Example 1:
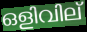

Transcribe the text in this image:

ഒളിവില്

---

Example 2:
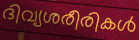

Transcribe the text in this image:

ദിവ്യശരീരികൾ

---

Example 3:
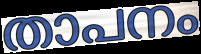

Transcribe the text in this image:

താപനം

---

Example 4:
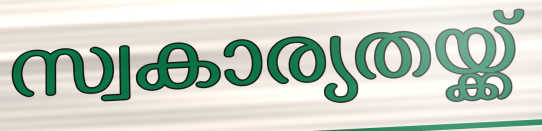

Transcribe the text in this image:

സ്വകാര്യതയ്ക്ക്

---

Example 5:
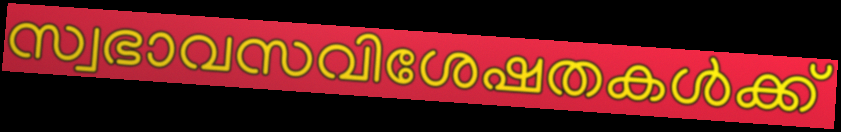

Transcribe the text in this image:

സ്വഭാവസവിശേഷതകൾക്ക്